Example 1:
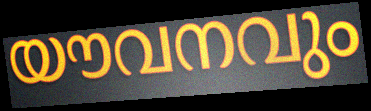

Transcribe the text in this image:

യൗവനവും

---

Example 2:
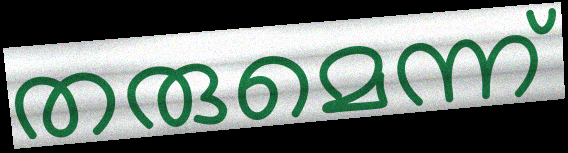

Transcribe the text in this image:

തരുമെന്ന്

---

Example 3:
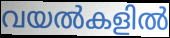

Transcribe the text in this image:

വയൽകളിൽ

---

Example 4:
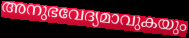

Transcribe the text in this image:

അനുഭവേദ്യമാവുകയും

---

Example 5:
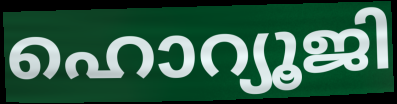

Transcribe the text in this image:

ഹൊറ്യൂജി